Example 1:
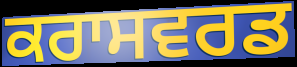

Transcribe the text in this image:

ਕਰਾਸਵਰਡ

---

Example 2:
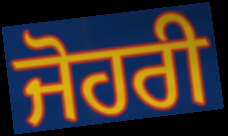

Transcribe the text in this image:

ਜੋਹਰੀ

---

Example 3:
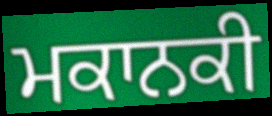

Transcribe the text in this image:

ਮਕਾਨਕੀ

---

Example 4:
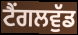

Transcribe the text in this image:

ਟੈਂਗਲਵੁੱਡ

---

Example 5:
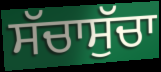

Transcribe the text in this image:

ਸੱਚਾਸੁੱਚਾ